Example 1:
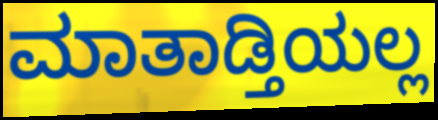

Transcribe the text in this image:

ಮಾತಾಡ್ತಿಯಲ್ಲ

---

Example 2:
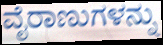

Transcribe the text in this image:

ವೈರಾಣುಗಳನ್ನು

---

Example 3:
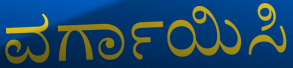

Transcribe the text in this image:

ವರ್ಗಾಯಿಸಿ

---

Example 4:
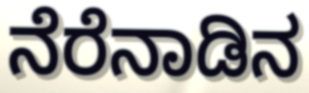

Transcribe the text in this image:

ನೆರೆನಾಡಿನ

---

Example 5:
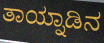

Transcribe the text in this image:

ತಾಯ್ನಾಡಿನ